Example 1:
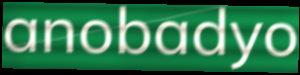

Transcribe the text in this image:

anobadyo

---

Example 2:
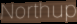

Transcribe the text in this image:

Northup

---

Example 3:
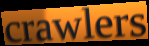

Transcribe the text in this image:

crawlers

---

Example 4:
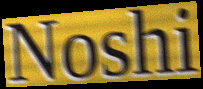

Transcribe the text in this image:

Noshi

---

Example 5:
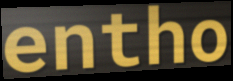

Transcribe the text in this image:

entho